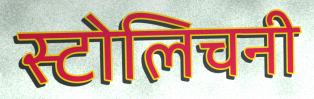
स्टोलिचनी